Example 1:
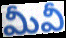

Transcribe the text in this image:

మీవీ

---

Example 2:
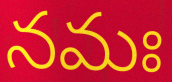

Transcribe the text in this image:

నమః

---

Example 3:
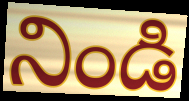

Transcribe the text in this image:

నిండి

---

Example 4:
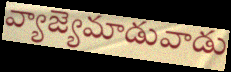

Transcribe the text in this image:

వ్యాజ్యెమాడువాడు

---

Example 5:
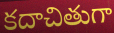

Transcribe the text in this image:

కదాచితుగా